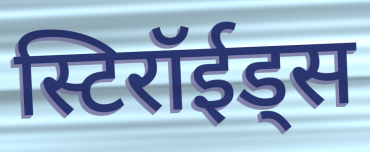
स्टिरॉईड्स